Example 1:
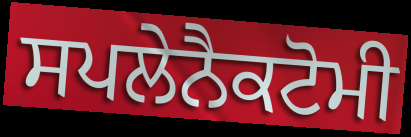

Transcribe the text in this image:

ਸਪਲੇਨੈਕਟੋਮੀ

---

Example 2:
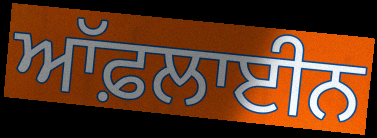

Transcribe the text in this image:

ਆੱਫ਼ਲਾਈਨ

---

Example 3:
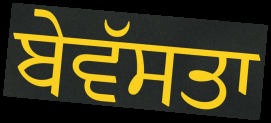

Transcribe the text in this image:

ਬੇਵੱਸਤਾ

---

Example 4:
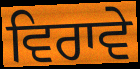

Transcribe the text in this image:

ਵਿਰਾਵੇ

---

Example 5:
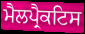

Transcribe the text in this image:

ਮੈਲਪ੍ਰੈਕਟਿਸ